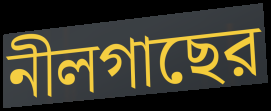
নীলগাছের